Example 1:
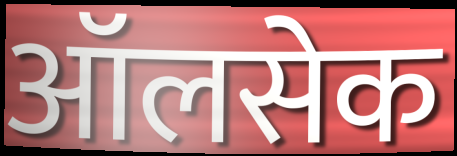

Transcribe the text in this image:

ऑलसेक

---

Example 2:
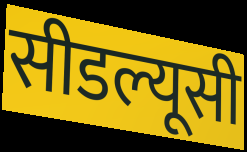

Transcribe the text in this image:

सीडल्यूसी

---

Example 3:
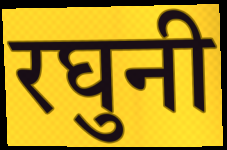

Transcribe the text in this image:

रघुनी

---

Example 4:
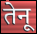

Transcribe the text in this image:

तेनू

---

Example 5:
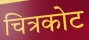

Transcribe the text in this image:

चित्रकोट